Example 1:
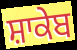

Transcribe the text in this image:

ਸ਼ਾਕੇਬ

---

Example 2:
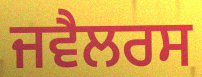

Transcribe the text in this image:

ਜਵੈਲਰਸ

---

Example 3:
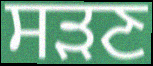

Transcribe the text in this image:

ਸੜਣ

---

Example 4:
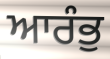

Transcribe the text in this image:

ਆਰੰਭੁ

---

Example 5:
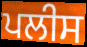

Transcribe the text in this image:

ਪਲੀਸ